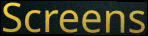
Screens